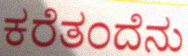
ಕರೆತಂದೆನು